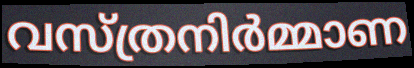
വസ്ത്രനിർമ്മാണ